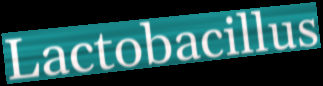
Lactobacillus